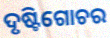
ଦୃଷ୍ଟିଗୋଚର